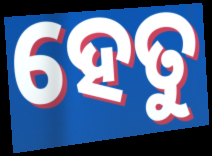
ହେତୁ